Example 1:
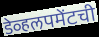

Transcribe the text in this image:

डेव्हलपमेंटची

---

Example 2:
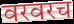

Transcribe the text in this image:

वरवरच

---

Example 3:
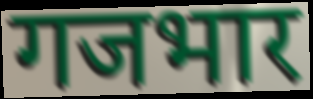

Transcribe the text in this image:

गजभार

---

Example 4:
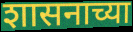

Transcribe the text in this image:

शासनाच्या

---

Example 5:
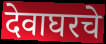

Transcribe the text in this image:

देवाघरचे